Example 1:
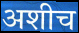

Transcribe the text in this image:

अशीच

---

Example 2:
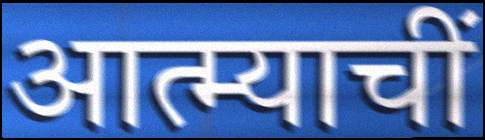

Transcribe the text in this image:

आत्म्याचीं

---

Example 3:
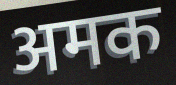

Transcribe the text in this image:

अमक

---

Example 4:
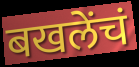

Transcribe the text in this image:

बखलेंचं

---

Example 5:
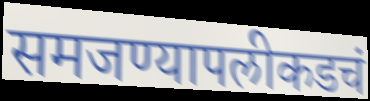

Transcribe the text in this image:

समजण्यापलीकडचं